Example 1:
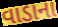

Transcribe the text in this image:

વાડાના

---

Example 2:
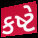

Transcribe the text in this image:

કષ્ટે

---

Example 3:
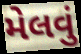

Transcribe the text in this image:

મેલવું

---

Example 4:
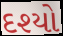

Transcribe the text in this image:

દશ્યો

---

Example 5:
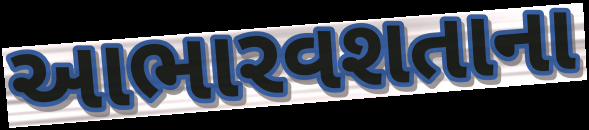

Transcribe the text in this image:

આભારવશતાના